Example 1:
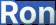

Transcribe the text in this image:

Ron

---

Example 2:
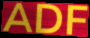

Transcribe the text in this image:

ADF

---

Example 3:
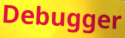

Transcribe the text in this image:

Debugger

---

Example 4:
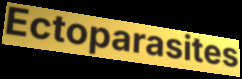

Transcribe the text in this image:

Ectoparasites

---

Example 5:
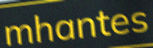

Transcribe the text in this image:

mhantes